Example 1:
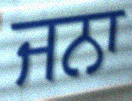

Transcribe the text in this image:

ਜਨਾ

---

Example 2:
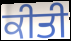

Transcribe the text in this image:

ਕੀਤੀ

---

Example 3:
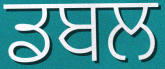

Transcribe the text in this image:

ਡਬਲ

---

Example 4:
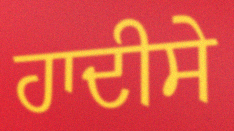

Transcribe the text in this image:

ਹਾਦੀਸੇ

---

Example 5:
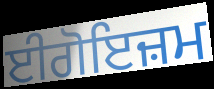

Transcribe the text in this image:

ਈਗੋਇਜ਼ਮ